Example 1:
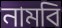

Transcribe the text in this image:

নামবি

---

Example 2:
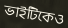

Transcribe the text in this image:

ভাইটিকেও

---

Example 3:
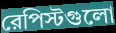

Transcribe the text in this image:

রেপিস্টগুলো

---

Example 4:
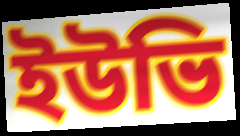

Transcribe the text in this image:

ইউভি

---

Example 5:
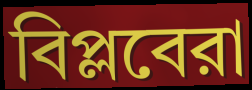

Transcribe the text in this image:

বিপ্লবেরা